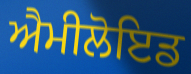
ਐਮੀਲੋਇਡ